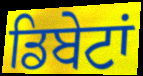
ਡਿਬੇਟਾਂ